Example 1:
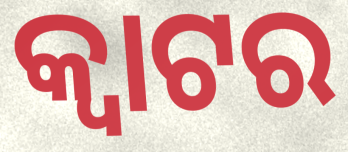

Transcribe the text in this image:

କ୍ୱାଟର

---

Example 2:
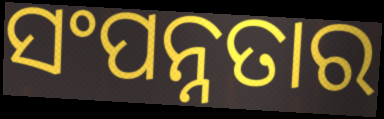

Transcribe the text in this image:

ସଂପନ୍ନତାର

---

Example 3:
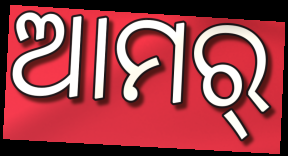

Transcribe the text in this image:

ଆମର୍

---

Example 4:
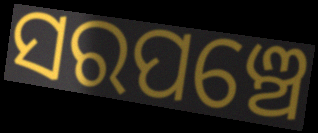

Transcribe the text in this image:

ସରପଞ୍ଚେ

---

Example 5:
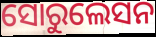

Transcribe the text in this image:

ସୋରୁଲେସନ